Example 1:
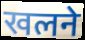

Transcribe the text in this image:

खलने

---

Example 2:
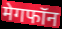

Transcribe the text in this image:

मेगफॉन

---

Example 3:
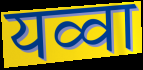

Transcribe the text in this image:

यव्वा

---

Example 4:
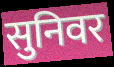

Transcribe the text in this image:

सुनिवर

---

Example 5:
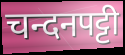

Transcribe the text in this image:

चन्दनपट्टी